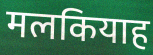
मलकियाह